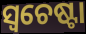
ସ୍ଵଚେଷ୍ଟା